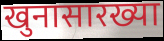
खुनासारख्या